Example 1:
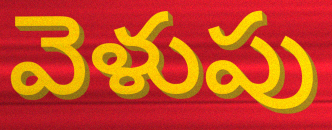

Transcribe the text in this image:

వెళుపు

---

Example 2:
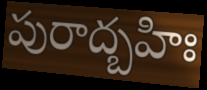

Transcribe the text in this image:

పురాద్బహిః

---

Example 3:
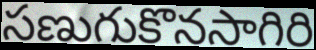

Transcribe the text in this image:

సణుగుకొనసాగిరి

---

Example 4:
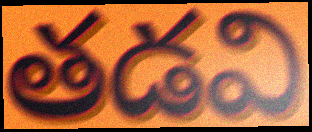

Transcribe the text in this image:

తడవి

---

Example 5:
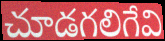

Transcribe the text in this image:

చూడగలిగేవి